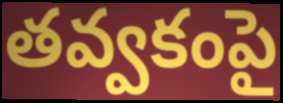
తవ్వకంపై